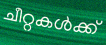
ചീറ്റകൾക്ക്